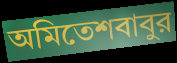
অমিতেশবাবুর